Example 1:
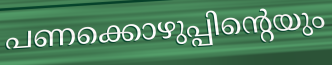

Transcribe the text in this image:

പണക്കൊഴുപ്പിന്റെയും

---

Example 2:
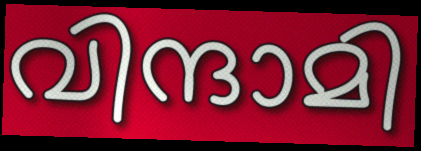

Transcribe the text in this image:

വിന്ദാമി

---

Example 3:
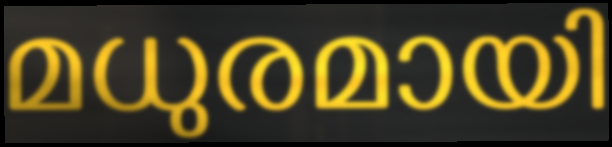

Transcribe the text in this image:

മധുരമായി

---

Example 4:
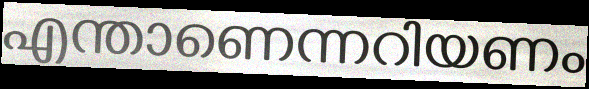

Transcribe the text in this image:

എന്താണെന്നറിയണം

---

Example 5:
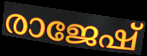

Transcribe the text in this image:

രാജേഷ്